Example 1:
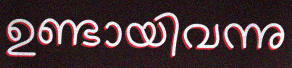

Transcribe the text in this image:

ഉണ്ടായിവന്നു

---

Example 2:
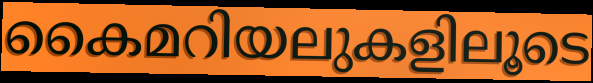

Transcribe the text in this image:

കൈമറിയലുകളിലൂടെ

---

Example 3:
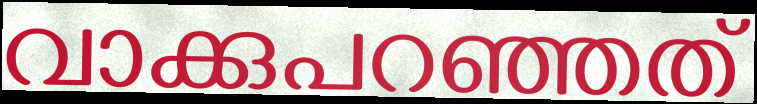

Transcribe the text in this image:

വാക്കുപറഞ്ഞത്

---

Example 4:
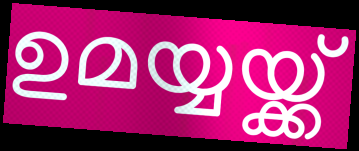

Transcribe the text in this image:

ഉമയ്യയ്ക്ക്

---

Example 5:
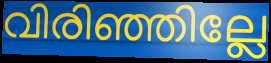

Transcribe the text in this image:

വിരിഞ്ഞില്ലേ